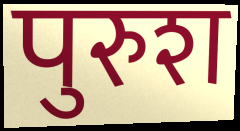
पुरुश